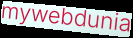
mywebdunia